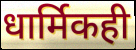
धार्मिकही